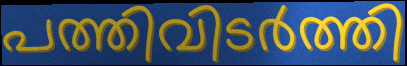
പത്തിവിടർത്തി